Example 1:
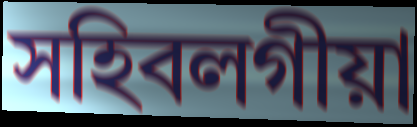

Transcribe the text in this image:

সহিবলগীয়া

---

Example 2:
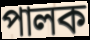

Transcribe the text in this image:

পালক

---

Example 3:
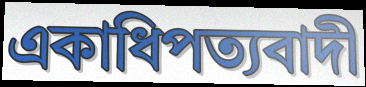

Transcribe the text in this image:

একাধিপত্যবাদী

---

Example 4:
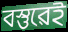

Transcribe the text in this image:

বস্তুৱেই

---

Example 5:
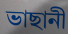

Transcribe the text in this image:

ভাছানী